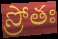
స్రోతః